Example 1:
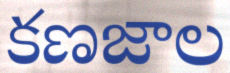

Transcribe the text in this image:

కణజాల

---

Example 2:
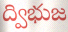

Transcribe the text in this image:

ద్విభుజ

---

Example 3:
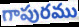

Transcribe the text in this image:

గాపురము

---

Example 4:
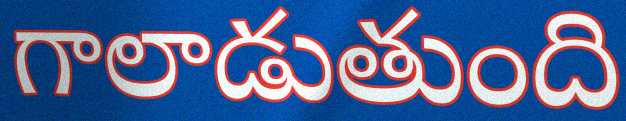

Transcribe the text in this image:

గాలాడుతుంది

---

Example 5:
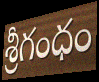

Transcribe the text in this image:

శ్రీగంధం